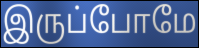
இருப்போமே